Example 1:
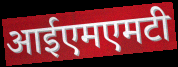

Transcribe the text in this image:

आईएमएमटी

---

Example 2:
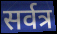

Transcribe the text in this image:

सर्वत्र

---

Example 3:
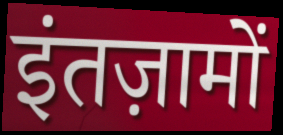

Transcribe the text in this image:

इंतज़ामों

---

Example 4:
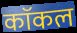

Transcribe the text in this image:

कॉकल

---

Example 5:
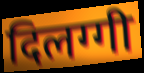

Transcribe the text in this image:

दिलग्गी